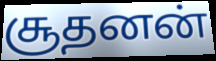
சூதனன்